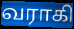
வராகி